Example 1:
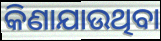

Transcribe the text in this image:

କିଣାଯାଉଥିବା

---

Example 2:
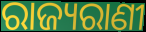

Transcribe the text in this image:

ରାଜ୍ୟରାଣୀ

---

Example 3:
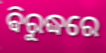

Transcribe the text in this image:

ଵିରୁଦ୍ଧରେ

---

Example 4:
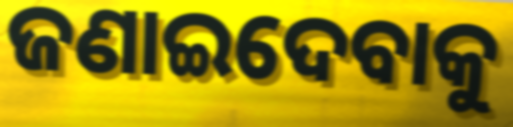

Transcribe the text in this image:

ଜଣାଇଦେବାକୁ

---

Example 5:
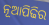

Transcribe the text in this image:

ନୂଆପିଢିର